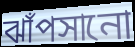
ঝাঁপসানো